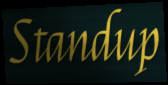
Standup